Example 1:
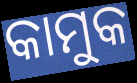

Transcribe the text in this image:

କାମୁକ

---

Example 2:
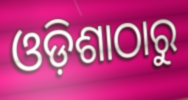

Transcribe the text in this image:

ଓଡ଼ିଶାଠାରୁ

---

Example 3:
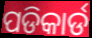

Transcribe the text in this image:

ପଡିକାର୍ଡ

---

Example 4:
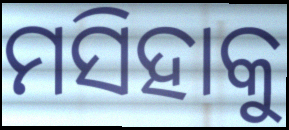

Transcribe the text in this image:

ମସିହାକୁ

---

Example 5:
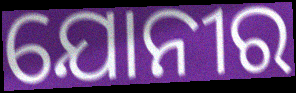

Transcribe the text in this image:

ଯୋନୀର